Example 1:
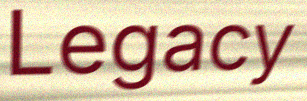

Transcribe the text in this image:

Legacy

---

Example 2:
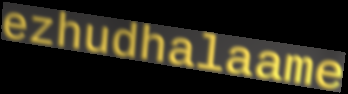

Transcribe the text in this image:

ezhudhalaame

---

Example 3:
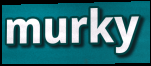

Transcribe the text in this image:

murky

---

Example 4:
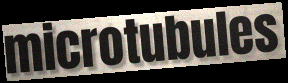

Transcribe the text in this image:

microtubules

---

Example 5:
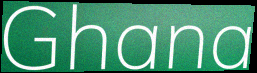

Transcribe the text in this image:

Ghana